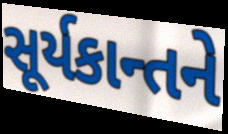
સૂર્યકાન્તને